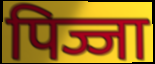
पिज्जा